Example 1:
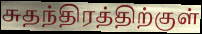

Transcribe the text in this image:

சுதந்திரத்திற்குள்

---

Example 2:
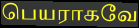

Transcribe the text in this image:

பெயராகவே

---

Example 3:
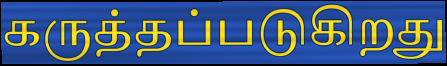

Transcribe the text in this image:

கருத்தப்படுகிறது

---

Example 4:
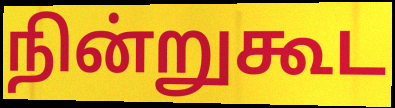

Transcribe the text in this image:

நின்றுகூட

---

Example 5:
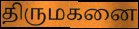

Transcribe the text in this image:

திருமகனை